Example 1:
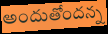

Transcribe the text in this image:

అందుతోందన్న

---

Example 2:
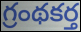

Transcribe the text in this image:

గ్రంథకర్త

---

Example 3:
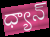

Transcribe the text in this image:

ధ్యాన్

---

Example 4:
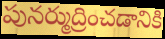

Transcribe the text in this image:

పునర్ముద్రించడానికి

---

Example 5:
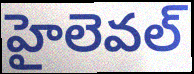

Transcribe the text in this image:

హైలెవల్